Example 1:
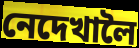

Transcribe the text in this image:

নেদেখালৈ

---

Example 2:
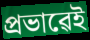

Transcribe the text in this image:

প্ৰভাৱেই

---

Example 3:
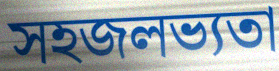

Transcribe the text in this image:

সহজলভ্যতা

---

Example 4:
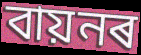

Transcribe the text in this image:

বায়নৰ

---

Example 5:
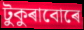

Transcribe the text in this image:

টুকুৰাবোৰে